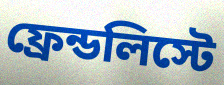
ফ্রেন্ডলিস্টে